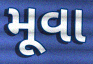
મૂવા